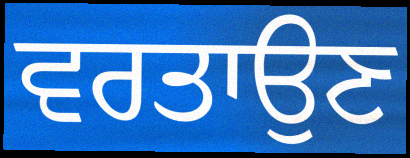
ਵਰਤਾਉਣ